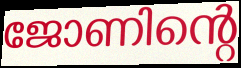
ജോണിന്റെ